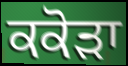
ਕਕੋੜਾ